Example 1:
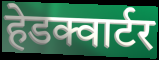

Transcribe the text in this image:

हेडक्वार्टर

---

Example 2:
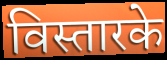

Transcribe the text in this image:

विस्तारके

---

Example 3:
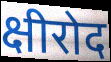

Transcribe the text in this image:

क्षीरोद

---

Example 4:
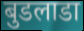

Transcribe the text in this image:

बुडलाडा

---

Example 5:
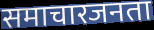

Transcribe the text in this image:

समाचारजनता